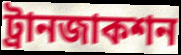
ট্রানজাকশন